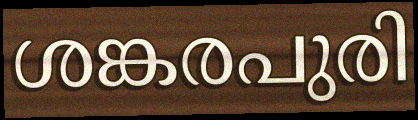
ശങ്കരപുരി